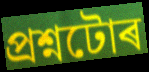
প্ৰশ্নটোৰ